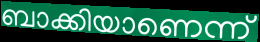
ബാക്കിയാണെന്ന്